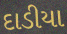
દાડીયા